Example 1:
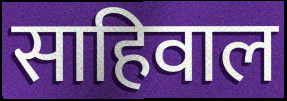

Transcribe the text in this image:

साहिवाल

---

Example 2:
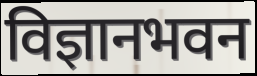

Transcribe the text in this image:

विज्ञानभवन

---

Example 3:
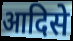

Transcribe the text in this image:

आदिसे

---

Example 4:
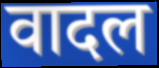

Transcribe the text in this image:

वादल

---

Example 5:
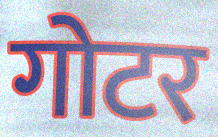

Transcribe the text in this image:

गोटर